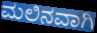
ಮಲಿನವಾಗಿ